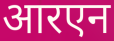
आरएन